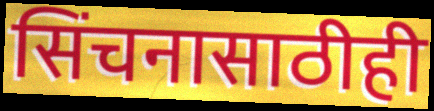
सिंचनासाठीही